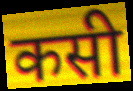
कसी